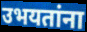
उभयतांना